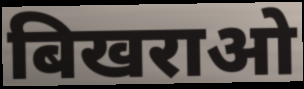
बिखराओ